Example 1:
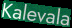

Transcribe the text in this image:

Kalevala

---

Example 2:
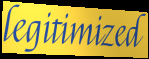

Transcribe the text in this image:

legitimized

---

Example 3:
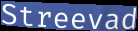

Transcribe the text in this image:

Streevad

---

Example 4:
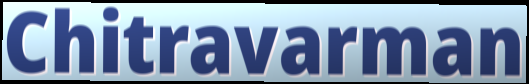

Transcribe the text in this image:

Chitravarman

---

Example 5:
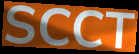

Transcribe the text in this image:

SCCT